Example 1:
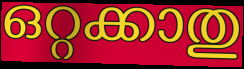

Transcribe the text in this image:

ഒറ്റക്കാതു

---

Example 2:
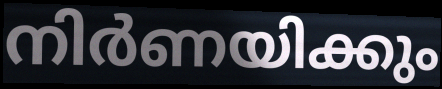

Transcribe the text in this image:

നിർണയിക്കും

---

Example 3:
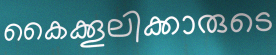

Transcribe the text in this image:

കൈക്കൂലിക്കാരുടെ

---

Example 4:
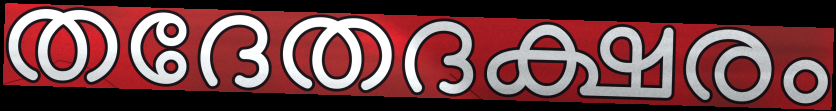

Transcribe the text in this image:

തദേതദക്ഷരം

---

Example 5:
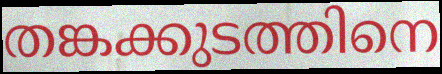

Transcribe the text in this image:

തങ്കക്കുടത്തിനെ